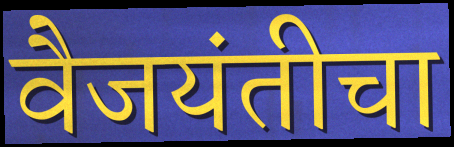
वैजयंतीचा